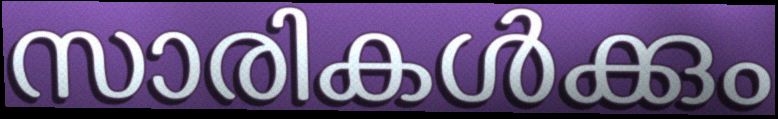
സാരികൾക്കും